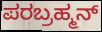
ಪರಬ್ರಹ್ಮನ್